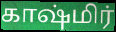
காஷ்மிர்